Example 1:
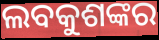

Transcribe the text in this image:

ଲବକୁଶଙ୍କର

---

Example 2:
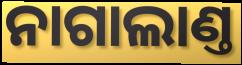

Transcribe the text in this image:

ନାଗାଲାଣ୍ତ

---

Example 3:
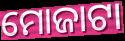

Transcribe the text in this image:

ମୋଜାଟା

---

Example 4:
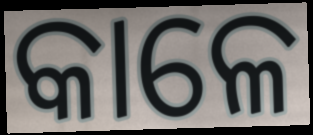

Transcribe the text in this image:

କାଳେ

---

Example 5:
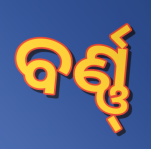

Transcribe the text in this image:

ବର୍ଣ୍ଣ୍